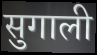
सुगाली